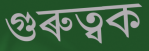
গুৰুত্বক